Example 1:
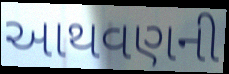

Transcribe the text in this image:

આથવણની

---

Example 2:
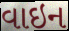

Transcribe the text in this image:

વાઇન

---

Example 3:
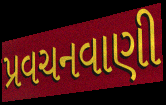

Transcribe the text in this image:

પ્રવચનવાણી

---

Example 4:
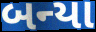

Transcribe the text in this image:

બન્યા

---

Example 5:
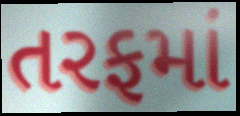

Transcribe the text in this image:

તરફમાં